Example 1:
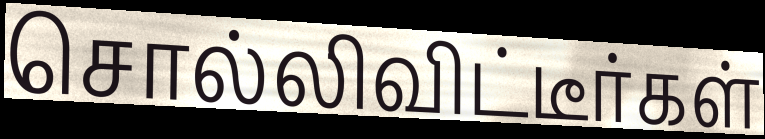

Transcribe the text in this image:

சொல்லிவிட்டீர்கள்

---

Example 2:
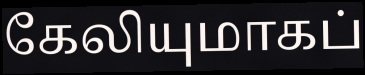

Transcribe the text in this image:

கேலியுமாகப்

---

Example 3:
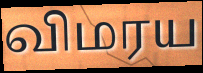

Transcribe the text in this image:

விமரய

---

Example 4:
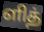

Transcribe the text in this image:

ளித்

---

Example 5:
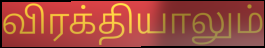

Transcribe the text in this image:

விரக்தியாலும்